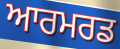
ਆਰਮਰਡ